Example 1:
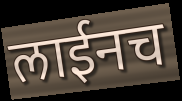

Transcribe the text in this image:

लाईनच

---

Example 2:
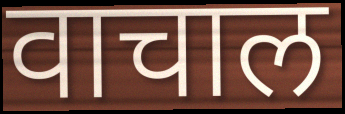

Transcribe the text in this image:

वाचाल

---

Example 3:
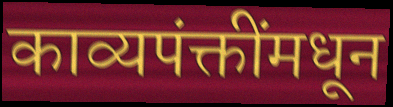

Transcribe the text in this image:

काव्यपंक्तींमधून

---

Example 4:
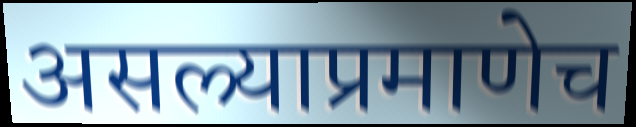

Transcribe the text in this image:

असल्याप्रमाणेच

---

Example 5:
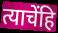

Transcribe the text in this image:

त्याचेंहि